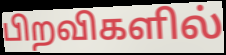
பிறவிகளில்